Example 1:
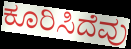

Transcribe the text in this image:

ಕೂರಿಸಿದೆವು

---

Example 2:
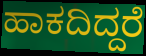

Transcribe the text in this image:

ಹಾಕದಿದ್ದರೆ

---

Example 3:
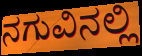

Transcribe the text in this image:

ನಗುವಿನಲ್ಲಿ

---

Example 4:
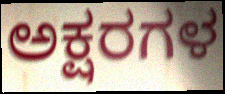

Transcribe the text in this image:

ಅಕ್ಷರಗಳ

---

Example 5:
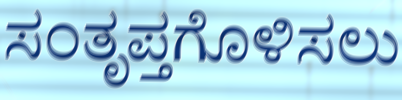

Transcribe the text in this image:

ಸಂತೃಪ್ತಗೊಳಿಸಲು